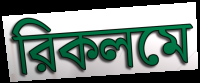
রিকলমে